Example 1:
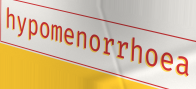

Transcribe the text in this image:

hypomenorrhoea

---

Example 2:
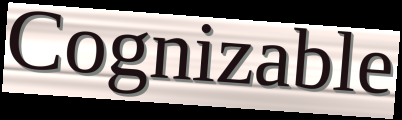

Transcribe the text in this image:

Cognizable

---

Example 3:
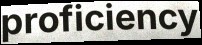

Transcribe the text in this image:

proficiency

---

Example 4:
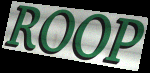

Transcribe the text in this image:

ROOP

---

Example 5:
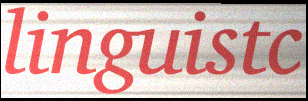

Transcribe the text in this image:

linguistc